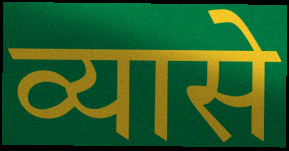
व्यासे